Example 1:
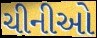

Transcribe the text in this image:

ચીનીઓ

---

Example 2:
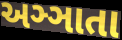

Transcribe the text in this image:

અઞ્ઞાતા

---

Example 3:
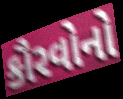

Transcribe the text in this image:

કૌરવોનો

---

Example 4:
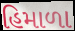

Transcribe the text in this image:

હિમાળા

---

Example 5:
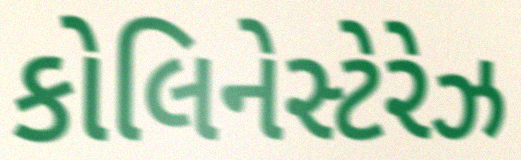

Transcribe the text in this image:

કોલિનેસ્ટેરેઝ